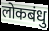
लोकबंधु